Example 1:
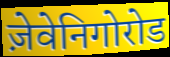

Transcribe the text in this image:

ज़ेवेनिगोरोड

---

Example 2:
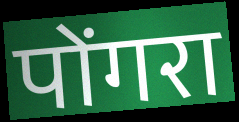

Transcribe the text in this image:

पोंगरा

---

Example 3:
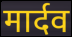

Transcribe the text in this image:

मार्दव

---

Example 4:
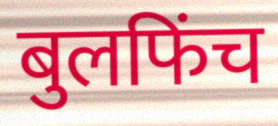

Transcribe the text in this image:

बुलफिंच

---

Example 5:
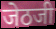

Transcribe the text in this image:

जेठजी